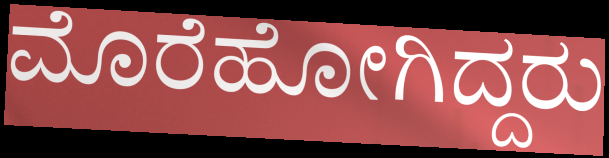
ಮೊರೆಹೋಗಿದ್ದರು